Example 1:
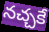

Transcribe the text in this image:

నచ్చకే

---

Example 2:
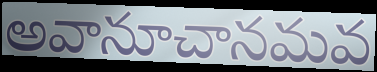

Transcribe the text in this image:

అవానూచానమవ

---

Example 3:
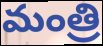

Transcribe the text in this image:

మంత్రి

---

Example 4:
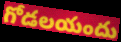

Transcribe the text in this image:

గోడలయందు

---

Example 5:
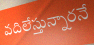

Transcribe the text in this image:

వదిలేస్తున్నారనే